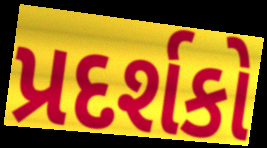
પ્રદર્શકો